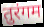
तुरंगम